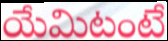
యేమిటంటే